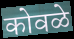
कोवळे